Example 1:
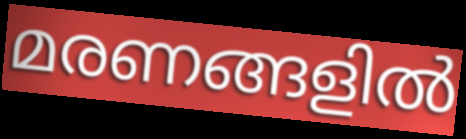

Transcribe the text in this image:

മരണങ്ങളിൽ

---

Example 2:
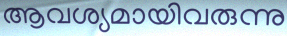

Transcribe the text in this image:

ആവശ്യമായിവരുന്നു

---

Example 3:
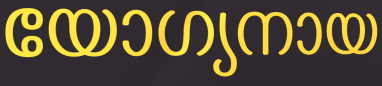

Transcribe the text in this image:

യോഗ്യനായ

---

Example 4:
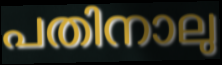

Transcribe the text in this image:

പതിനാലു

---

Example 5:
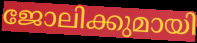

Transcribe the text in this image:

ജോലിക്കുമായി